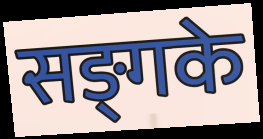
सङ्गके